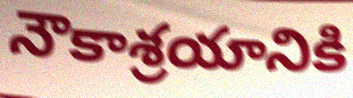
నౌకాశ్రయానికి